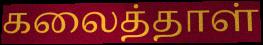
கலைத்தாள்